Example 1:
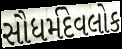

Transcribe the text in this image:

સૌધર્મદેવલોક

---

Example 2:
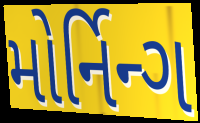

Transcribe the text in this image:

મોર્નિન્ગ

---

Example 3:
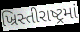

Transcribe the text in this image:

ખ્રિસ્તીરાષ્ટ્રમાં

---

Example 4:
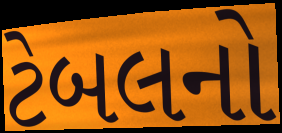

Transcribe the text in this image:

ટેબલનો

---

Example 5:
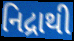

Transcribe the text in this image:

નિદ્રાથી